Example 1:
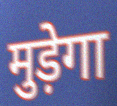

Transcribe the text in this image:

मुड़ेगा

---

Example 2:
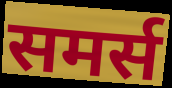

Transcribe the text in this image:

समर्स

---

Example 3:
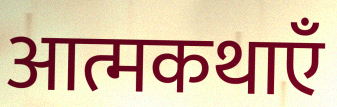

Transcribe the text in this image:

आत्मकथाएँ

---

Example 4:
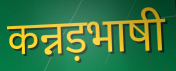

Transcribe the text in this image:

कन्नड़भाषी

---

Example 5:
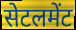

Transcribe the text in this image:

सेटलमेंट